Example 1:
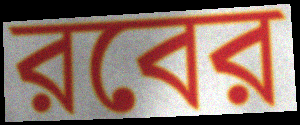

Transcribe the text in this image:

রবের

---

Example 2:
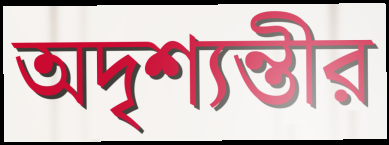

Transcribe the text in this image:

অদৃশ্যন্তীর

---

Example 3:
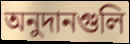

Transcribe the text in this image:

অনুদানগুলি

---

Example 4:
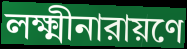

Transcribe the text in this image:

লক্ষ্মীনারায়ণে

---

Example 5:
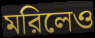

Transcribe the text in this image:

মরিলেও